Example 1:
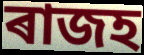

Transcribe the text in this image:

ৰাজহ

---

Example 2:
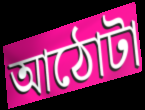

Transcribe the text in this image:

আঠোটা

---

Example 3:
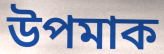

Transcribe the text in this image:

উপমাক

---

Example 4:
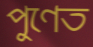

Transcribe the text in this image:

পুণেত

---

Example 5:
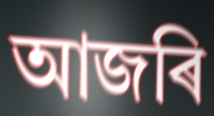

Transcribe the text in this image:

আজৰি